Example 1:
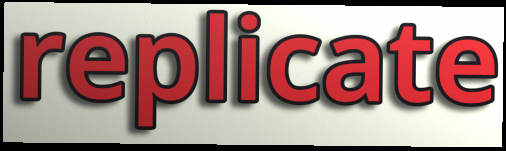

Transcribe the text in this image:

replicate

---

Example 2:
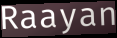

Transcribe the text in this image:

Raayan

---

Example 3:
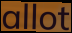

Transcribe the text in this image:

allot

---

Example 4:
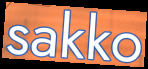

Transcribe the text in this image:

sakko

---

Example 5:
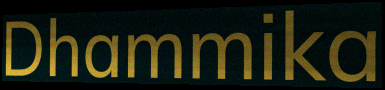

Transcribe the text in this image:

Dhammika